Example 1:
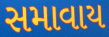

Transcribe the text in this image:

સમાવાય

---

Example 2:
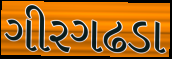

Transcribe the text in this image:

ગીરગઢડા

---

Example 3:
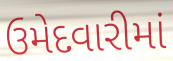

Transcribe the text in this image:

ઉમેદવારીમાં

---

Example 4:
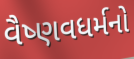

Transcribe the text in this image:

વૈષ્ણવધર્મનો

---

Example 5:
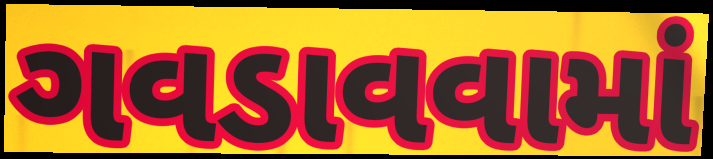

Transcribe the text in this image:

ગવડાવવામાં